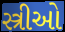
સ્ત્રીઓ